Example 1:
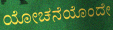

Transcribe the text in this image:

ಯೋಚನೆಯೊಂದೇ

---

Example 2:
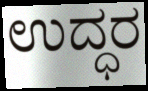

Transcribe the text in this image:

ಉದ್ಧರ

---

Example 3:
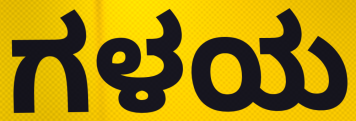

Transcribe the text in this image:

ಗಳಯ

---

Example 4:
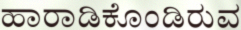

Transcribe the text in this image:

ಹಾರಾಡಿಕೊಂಡಿರುವ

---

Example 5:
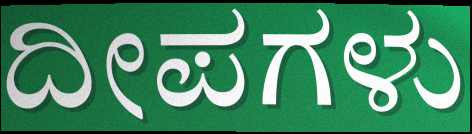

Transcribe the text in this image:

ದೀಪಗಳು